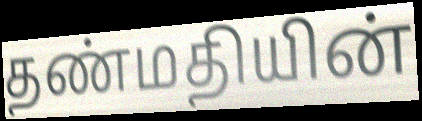
தண்மதியின்